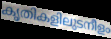
കൃതികളിലുടനീളം